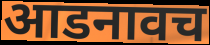
आडनावच